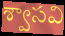
శ్వాసవి